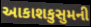
આકાશકુસુમની